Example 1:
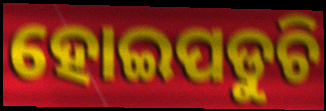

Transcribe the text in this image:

ହୋଇପଡୁଚି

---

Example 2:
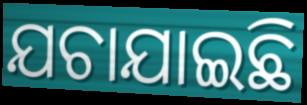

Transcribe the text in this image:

ଯଚାଯାଇଛି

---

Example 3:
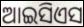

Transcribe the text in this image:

ଆଇସିଏସ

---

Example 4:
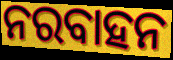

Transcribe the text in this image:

ନରବାହନ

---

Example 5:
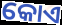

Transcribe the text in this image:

କୋଏ